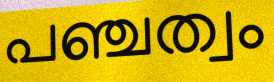
പഞ്ചത്വം